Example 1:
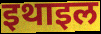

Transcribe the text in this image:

इथाइल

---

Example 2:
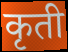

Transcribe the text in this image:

कृती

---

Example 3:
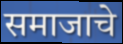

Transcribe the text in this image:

समाजाचे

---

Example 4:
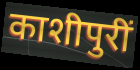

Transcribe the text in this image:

काशीपुरीं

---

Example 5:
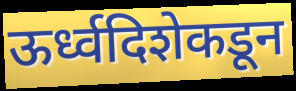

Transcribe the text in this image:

ऊर्ध्वदिशेकडून